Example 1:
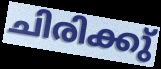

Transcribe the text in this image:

ചിരിക്കു്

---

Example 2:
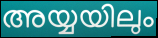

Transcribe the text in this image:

അയ്യയിലും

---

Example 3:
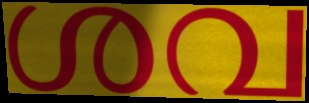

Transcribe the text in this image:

ശവ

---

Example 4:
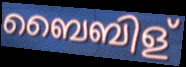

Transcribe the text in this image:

ബൈബിള്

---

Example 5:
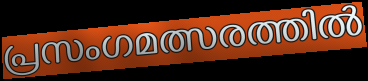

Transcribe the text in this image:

പ്രസംഗമത്സരത്തിൽ